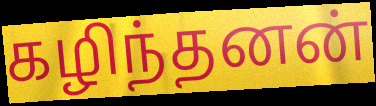
கழிந்தனன்